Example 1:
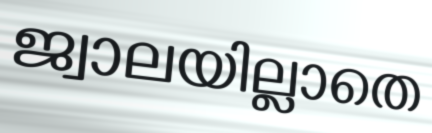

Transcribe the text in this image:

ജ്വാലയില്ലാതെ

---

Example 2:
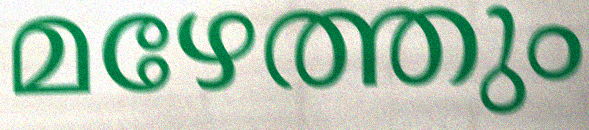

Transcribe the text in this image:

മഴേത്തും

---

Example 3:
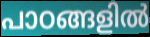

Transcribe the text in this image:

പാഠങ്ങളിൽ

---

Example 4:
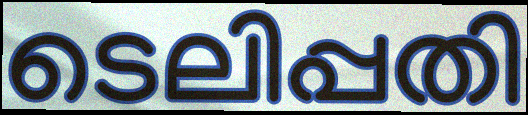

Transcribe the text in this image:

ടെലിപ്പതി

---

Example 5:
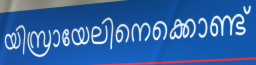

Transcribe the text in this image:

യിസ്രായേലിനെക്കൊണ്ട്